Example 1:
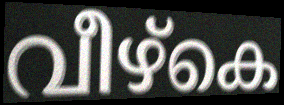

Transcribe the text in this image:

വീഴ്കെ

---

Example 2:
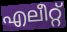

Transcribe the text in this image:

എലീറ്റ്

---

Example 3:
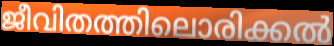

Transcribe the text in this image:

ജീവിതത്തിലൊരിക്കൽ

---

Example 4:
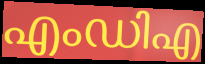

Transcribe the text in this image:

എംഡിഎ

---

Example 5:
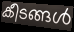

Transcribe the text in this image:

കീടങ്ങൾ